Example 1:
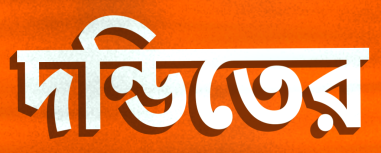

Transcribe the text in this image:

দন্ডিতের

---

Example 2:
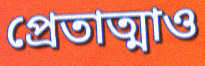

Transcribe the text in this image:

প্রেতাত্মাও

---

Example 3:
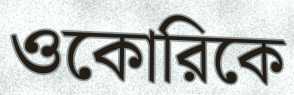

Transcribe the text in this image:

ওকোরিকে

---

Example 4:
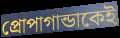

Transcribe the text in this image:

প্রোপাগান্ডাকেই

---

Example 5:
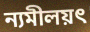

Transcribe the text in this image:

ন্যমীলয়ৎ